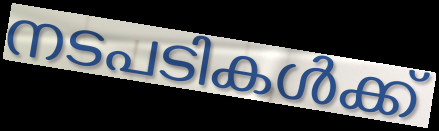
നടപടികൾക്ക്